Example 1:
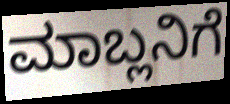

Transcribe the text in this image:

ಮಾಬ್ಲನಿಗೆ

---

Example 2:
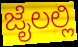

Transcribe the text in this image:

ಜೈಲಲ್ಲಿ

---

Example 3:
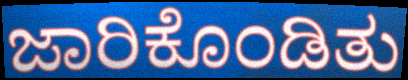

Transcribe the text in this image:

ಜಾರಿಕೊಂಡಿತು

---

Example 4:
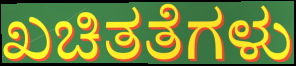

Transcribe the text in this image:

ಖಚಿತತೆಗಳು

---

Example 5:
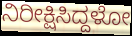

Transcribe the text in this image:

ನಿರೀಕ್ಷಿಸಿದ್ದಳೋ